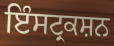
ਇੰਸਟ੍ਰਕਸ਼ਨ